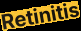
Retinitis